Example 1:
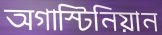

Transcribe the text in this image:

অগাস্টিনিয়ান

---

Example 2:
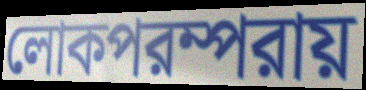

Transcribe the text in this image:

লোকপরম্পরায়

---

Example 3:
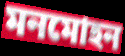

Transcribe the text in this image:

মনমোহন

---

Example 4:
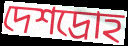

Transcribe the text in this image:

দেশদ্রোহ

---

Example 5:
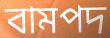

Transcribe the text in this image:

বামপদ